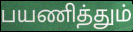
பயணித்தும்